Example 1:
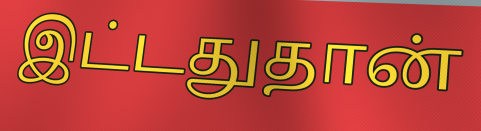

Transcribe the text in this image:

இட்டதுதான்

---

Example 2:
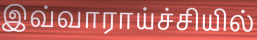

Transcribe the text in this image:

இவ்வாராய்ச்சியில்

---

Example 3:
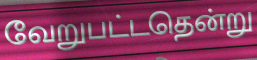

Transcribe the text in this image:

வேறுபட்டதென்று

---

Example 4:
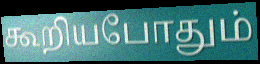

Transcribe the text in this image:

கூறியபோதும்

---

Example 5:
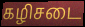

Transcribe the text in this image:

கழிசடை